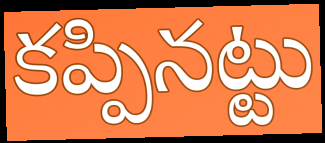
కప్పినట్టు